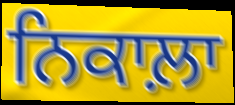
ਨਿਕਾਲ਼ਾ